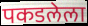
पकडलेला